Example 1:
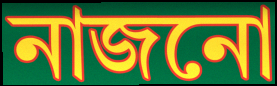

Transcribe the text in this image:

নাজনো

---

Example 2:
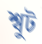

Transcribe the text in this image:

শ্বুট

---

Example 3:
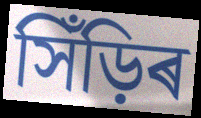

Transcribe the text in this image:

সিঁড়িৰ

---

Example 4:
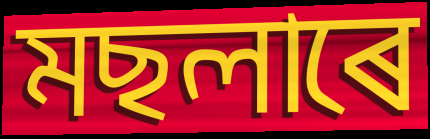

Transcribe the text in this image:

মছলাৰে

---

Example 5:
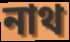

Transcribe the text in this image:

নাথ